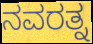
ನವರತ್ನ